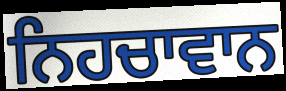
ਨਿਹਚਾਵਾਨ